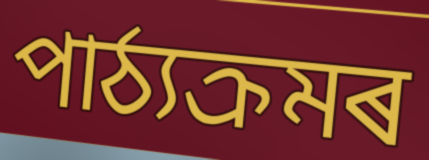
পাঠ্যক্ৰমৰ